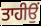
ਤਾਹੀਉਂ